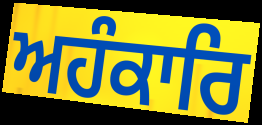
ਅਹੰਕਾਰਿ